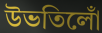
উভতিলোঁ